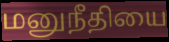
மனுநீதியை